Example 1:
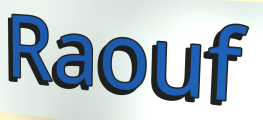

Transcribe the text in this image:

Raouf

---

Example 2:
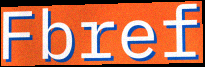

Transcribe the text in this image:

Fbref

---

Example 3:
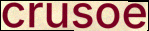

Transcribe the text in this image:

crusoe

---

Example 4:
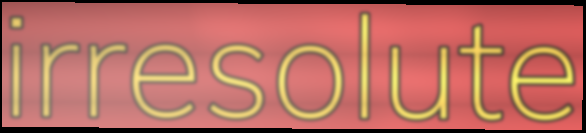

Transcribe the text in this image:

irresolute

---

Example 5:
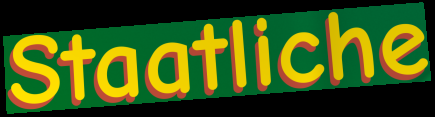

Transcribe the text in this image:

Staatliche